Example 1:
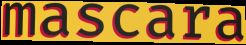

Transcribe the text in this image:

mascara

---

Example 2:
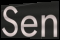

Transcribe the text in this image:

Sen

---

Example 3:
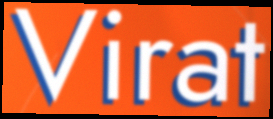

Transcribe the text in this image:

Virat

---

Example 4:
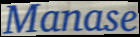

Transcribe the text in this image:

Manase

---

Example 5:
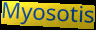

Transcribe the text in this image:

Myosotis